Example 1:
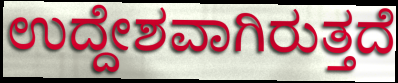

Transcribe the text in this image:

ಉದ್ದೇಶವಾಗಿರುತ್ತದೆ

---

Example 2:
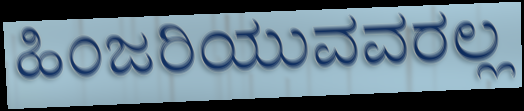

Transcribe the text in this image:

ಹಿಂಜರಿಯುವವರಲ್ಲ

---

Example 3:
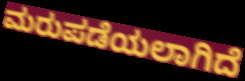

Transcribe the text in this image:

ಮರುಪಡೆಯಲಾಗಿದೆ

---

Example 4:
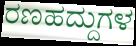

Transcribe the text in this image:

ರಣಹದ್ದುಗಳ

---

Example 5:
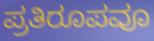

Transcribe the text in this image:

ಪ್ರತಿರೂಪವೂ